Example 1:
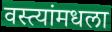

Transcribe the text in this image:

वस्त्यांमधला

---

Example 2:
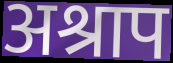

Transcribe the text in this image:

अश्राप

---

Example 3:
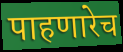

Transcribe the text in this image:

पाहणारेच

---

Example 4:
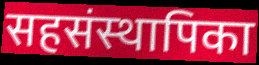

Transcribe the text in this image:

सहसंस्थापिका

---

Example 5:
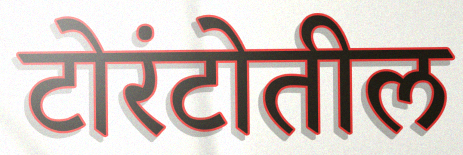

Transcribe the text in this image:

टोरंटोतील